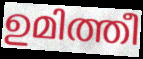
ഉമിത്തീ